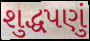
શુદ્ધપણું